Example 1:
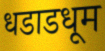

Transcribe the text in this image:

धडाडधूम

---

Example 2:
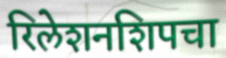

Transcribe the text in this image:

रिलेशनशिपचा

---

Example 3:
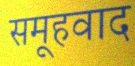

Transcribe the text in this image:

समूहवाद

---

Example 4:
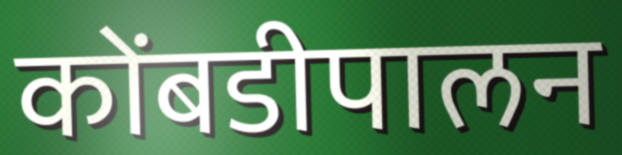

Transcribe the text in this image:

कोंबडीपालन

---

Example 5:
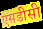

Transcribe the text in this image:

एसडीसी